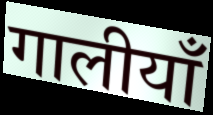
गालीयाँ